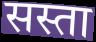
सस्ता